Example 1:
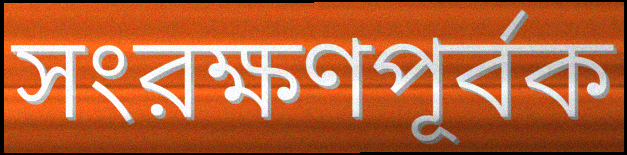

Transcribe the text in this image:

সংরক্ষণপূর্বক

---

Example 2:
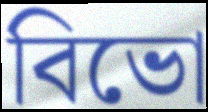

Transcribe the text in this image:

বিভো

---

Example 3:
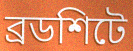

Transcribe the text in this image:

ব্রডশিটে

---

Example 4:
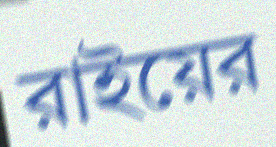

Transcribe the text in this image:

রাইয়ের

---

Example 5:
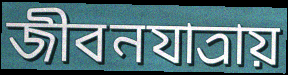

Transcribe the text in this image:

জীবনযাত্রায়